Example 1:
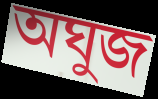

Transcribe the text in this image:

অঘুজ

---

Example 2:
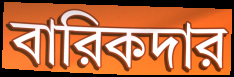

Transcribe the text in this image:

বারিকদার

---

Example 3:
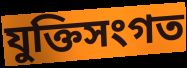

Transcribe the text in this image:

যুক্তিসংগত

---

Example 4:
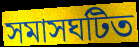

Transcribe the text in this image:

সমাসঘটিত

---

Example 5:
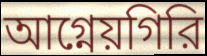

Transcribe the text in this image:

আগ্নেয়গিরি